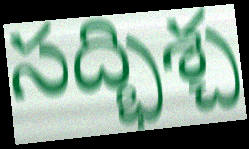
సద్భిశ్చ